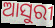
ଆସୁରୀ